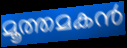
മൂത്തമകൻ